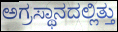
ಅಗ್ರಸ್ಥಾನದಲ್ಲಿತ್ತು